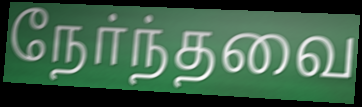
நேர்ந்தவை